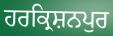
ਹਰਕ੍ਰਿਸ਼ਨਪੁਰ